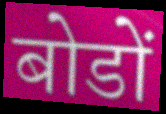
बोडों